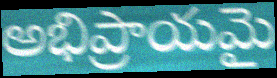
అభిప్రాయమై